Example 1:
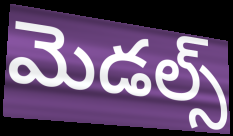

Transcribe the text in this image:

మెడల్స్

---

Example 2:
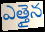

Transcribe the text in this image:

ఎత్తైన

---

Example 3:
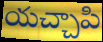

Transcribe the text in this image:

యచ్చాపి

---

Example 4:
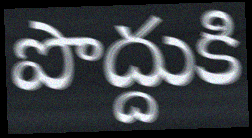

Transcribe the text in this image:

పొద్దుకి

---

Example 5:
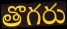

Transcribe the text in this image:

తొగరు